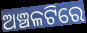
ଅଞ୍ଚଳଟିରେ